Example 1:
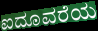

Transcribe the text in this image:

ಐದೂವರೆಯ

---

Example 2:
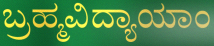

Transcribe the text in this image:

ಬ್ರಹ್ಮವಿದ್ಯಾಯಾಂ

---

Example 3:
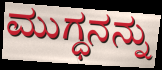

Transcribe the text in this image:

ಮುಗ್ಧನನ್ನು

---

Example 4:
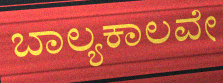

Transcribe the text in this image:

ಬಾಲ್ಯಕಾಲವೇ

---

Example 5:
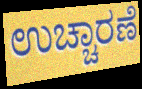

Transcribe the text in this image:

ಉಚ್ಚಾರಣೆ